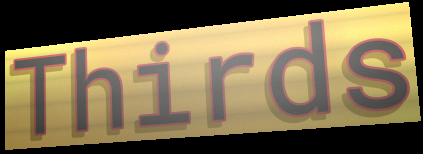
Thirds